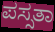
ಪಸ್ಸತಾ